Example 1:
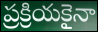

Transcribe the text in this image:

ప్రక్రియకైనా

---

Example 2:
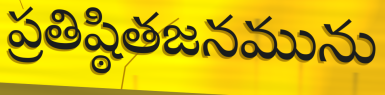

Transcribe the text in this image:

ప్రతిష్ఠితజనమును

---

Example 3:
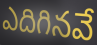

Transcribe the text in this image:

ఎదిగినవే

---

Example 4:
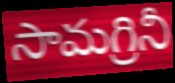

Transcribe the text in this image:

సామగ్రినీ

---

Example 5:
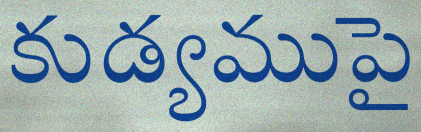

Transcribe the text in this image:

కుడ్యముపై